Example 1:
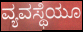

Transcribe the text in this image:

ವ್ಯವಸ್ಥೆಯೂ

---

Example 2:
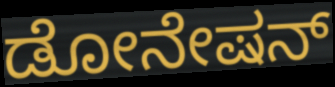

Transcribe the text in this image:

ಡೋನೇಷನ್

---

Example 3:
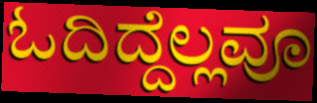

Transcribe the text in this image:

ಓದಿದ್ದೆಲ್ಲವೂ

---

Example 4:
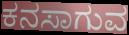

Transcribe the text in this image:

ಕನಸಾಗುವ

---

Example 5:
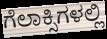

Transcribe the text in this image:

ಗೆಲಾಕ್ಸಿಗಳಲ್ಲಿ